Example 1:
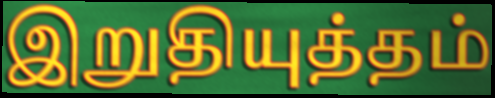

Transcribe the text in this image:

இறுதியுத்தம்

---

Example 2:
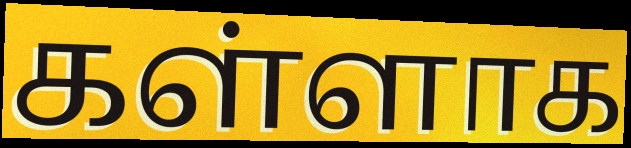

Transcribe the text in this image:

கள்ளாக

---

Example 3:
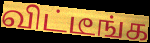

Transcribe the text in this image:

விட்டீங்க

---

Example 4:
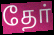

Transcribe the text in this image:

தேர்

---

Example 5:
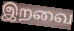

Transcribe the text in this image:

இறவை